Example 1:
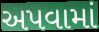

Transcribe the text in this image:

અપવામાં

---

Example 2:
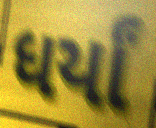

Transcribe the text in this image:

ધર્યાં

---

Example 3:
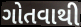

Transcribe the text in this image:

ગોતવાથી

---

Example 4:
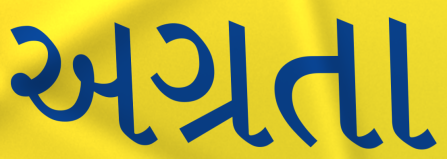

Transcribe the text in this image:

અગ્રતા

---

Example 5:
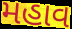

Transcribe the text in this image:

મહાવ